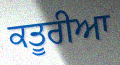
ਕਤੂਰੀਆ